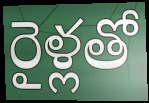
రైళ్లతో